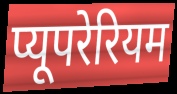
प्यूपरेरियम